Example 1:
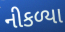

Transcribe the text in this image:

નીકળ્યા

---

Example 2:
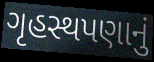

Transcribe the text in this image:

ગૃહસ્થપણાનું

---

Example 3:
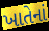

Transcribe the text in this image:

ખાતેનાં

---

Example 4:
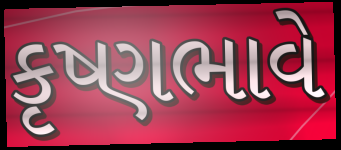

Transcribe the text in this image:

કૃષ્ણભાવે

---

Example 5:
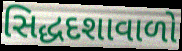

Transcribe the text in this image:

સિદ્ધદશાવાળો